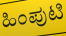
ಹಿಂಪುಟಿ